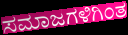
ಸಮಾಜಗಳಿಗಿಂತ